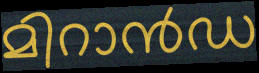
മിറാൻഡ